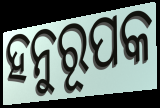
ହନୁରୂପକ